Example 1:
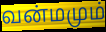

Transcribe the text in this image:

வன்மமும்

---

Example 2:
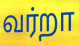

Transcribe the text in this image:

வர்றா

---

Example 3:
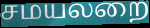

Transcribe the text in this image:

சமயலறை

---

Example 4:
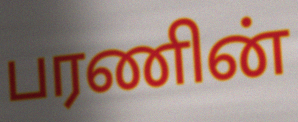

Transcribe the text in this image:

பரணின்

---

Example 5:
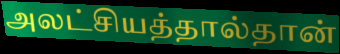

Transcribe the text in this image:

அலட்சியத்தால்தான்